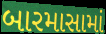
બારમાસામાં